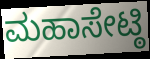
ಮಹಾಸೇಟ್ಠಿ